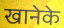
खानेके